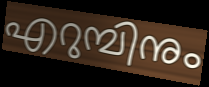
എറുമ്പിനും